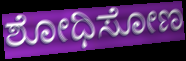
ಶೋಧಿಸೋಣ